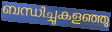
ബന്ധിച്ചുകളഞ്ഞു